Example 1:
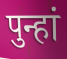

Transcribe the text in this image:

पुन्हां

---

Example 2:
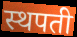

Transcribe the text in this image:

स्थपती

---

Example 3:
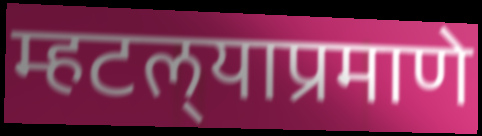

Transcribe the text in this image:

म्हटल्याप्रमाणे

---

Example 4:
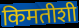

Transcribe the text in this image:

किमतीशी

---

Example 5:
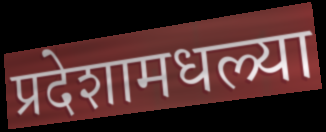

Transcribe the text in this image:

प्रदेशामधल्या